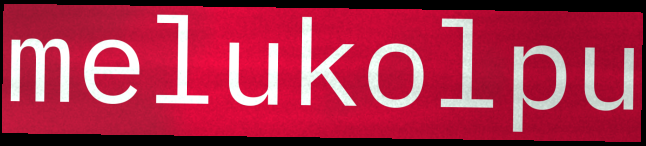
melukolpu